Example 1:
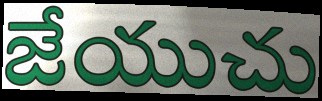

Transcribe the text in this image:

జేయుచు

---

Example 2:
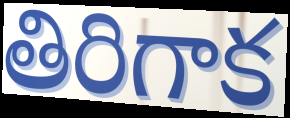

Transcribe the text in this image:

తిరిగాక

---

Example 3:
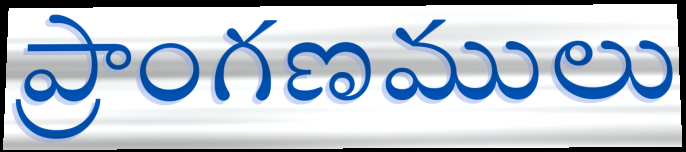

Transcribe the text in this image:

ప్రాంగణములు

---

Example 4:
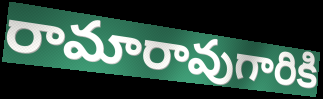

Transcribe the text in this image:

రామారావుగారికి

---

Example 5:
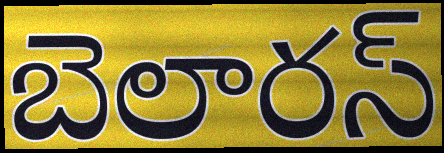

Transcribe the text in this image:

బెలారస్